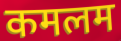
कमलम